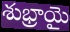
శుభ్రాయై